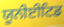
ਯੂਨੀਈਟਿਡ